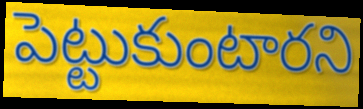
పెట్టుకుంటారని